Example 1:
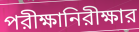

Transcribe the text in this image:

পরীক্ষানিরীক্ষার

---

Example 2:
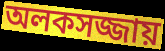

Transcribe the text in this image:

অলকসজ্জায়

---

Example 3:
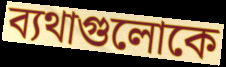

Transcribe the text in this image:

ব্যথাগুলোকে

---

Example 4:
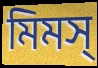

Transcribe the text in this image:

মিমস্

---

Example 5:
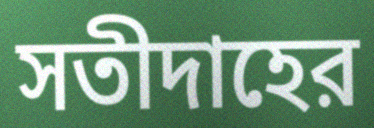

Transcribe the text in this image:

সতীদাহের